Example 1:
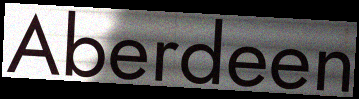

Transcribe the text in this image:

Aberdeen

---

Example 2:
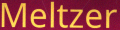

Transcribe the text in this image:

Meltzer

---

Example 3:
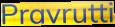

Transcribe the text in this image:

Pravrutti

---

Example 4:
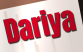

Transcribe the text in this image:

Dariya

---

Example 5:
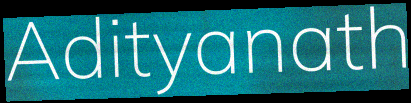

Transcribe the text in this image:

Adityanath